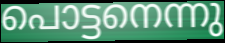
പൊട്ടനെന്നു